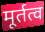
मूर्तत्व